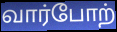
வார்போற்